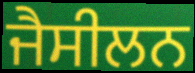
ਜੈਸੀਲਨ